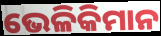
ଭେଳିକିମାନ